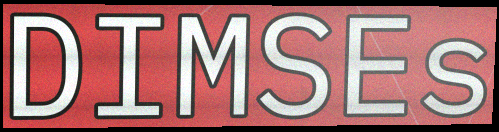
DIMSEs